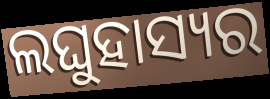
ଲଘୁହାସ୍ୟର